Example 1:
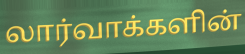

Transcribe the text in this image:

லார்வாக்களின்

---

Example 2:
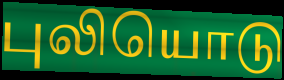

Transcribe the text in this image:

புலியொடு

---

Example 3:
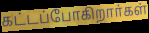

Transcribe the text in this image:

கட்டப்போகிறார்கள்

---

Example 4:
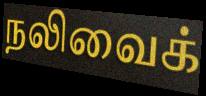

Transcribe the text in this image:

நலிவைக்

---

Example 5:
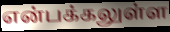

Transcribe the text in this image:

என்பக்கலுள்ள